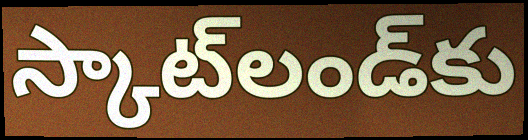
స్కాట్‌లండ్‌కు